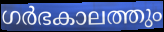
ഗർഭകാലത്തും